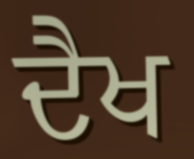
ਦੈਖ